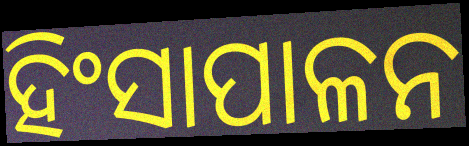
ହିଂସାପାଳନ